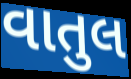
વાતુલ